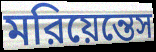
মরিয়েন্তেস